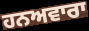
ਹਨਅਵਾਰਾ